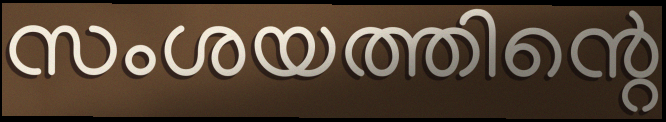
സംശയത്തിന്റെ